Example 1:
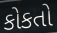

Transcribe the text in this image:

કોકતો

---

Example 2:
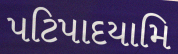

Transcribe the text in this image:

પટિપાદયામિ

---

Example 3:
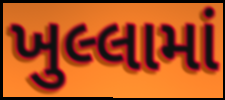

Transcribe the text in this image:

ખુલ્લામાં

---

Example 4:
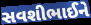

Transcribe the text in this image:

સવશીભાઈને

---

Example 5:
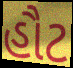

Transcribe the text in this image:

હૌટ